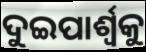
ଦୁଇପାର୍ଶ୍ବକୁ